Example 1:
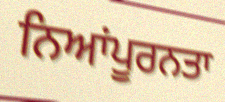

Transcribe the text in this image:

ਨਿਆਂਪੂਰਨਤਾ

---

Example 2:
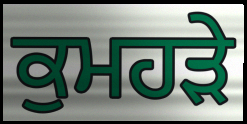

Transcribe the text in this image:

ਕੁਮਹੜੇ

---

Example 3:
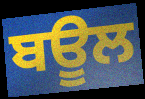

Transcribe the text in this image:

ਬਊਲ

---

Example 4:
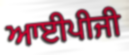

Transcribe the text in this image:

ਆਈਪੀਜੀ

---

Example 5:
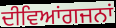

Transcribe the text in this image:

ਦੀਵਿਆਂਗਜਨਾਂ